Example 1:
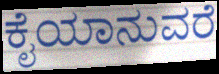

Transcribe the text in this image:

ಕೈಯಾನುವರೆ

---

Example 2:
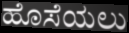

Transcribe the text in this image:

ಹೊಸೆಯಲು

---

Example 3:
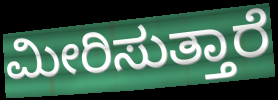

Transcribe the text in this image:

ಮೀರಿಸುತ್ತಾರೆ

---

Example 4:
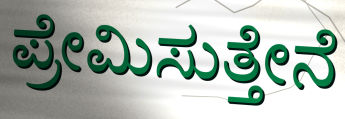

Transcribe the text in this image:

ಪ್ರೇಮಿಸುತ್ತೇನೆ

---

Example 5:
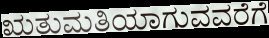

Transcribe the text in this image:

ಋತುಮತಿಯಾಗುವವರೆಗೆ